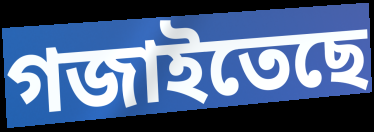
গজাইতেছে